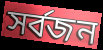
সর্বজন